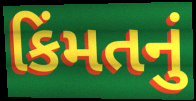
કિંમતનું